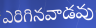
ఎరిగినవాడవు